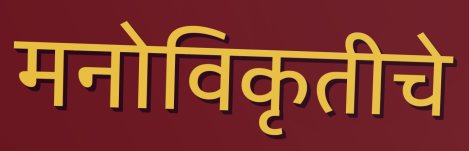
मनोविकृतीचे